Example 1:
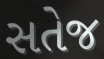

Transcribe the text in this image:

સતેજ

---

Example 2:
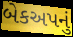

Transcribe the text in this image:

બેકઅપનું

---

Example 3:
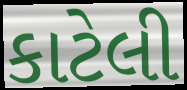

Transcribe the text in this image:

કાટેલી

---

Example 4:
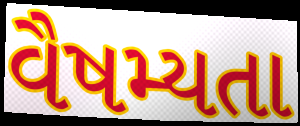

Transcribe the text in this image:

વૈષમ્યતા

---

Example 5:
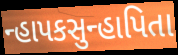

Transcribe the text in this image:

ન્હાપકસુન્હાપિતા